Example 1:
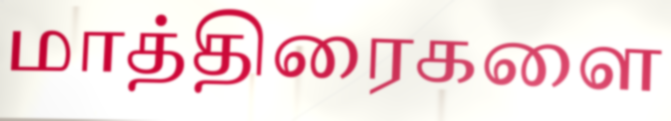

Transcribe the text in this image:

மாத்திரைகளை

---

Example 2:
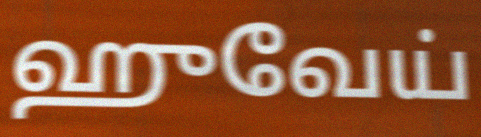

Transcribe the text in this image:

ஹுவேய்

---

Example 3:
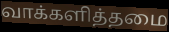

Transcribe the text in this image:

வாக்களித்தமை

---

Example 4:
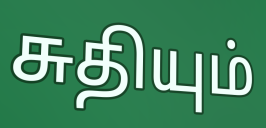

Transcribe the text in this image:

சுதியும்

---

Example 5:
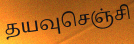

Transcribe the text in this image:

தயவுசெஞ்சி